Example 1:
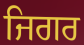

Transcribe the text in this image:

ਜਿਗਰ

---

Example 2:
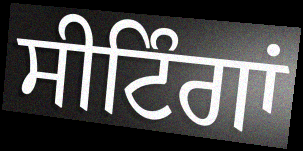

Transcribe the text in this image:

ਸੀਟਿੰਗਾਂ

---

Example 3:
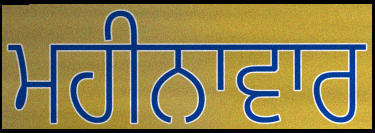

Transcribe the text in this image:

ਮਹੀਨਾਵਾਰ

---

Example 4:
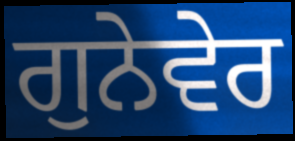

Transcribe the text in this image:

ਗੁਨੇਵੇਰ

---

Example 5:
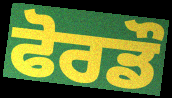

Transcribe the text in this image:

ਫੋਰਡੌ